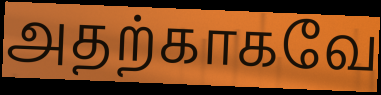
அதற்காகவே